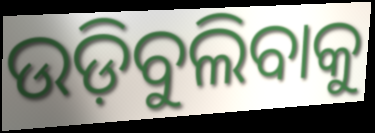
ଉଡ଼ିବୁଲିବାକୁ